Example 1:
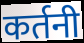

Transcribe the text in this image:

कर्तनी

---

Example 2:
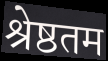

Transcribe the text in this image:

श्रेष्ठतम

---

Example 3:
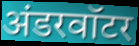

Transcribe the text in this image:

अंडरवॉटर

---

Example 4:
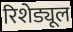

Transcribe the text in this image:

रिशेड्यूल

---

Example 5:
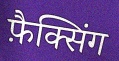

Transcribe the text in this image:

फ़ैक्सिंग